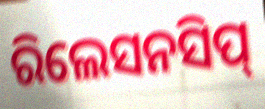
ରିଲେସନସିପ୍